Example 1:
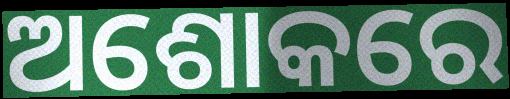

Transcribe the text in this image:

ଅଶୋକରେ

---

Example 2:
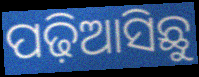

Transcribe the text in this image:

ପଢ଼ିଆସିଛୁ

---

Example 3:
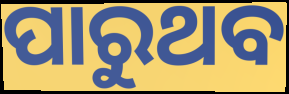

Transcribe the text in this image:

ପାରୁଥବ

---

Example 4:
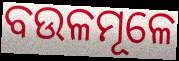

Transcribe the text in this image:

ବଉଳମୂଳେ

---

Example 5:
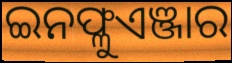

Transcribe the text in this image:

ଇନଫ୍ଳୁଏଞ୍ଜାର